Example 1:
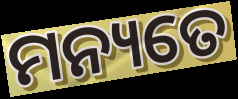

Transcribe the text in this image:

ମନ୍ୟତେ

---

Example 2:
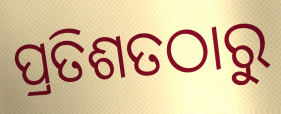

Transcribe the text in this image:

ପ୍ରତିଶତଠାରୁ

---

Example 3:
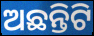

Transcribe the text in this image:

ଅଛନ୍ତିଟି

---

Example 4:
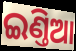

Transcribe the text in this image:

ଇଣ୍ତିଆ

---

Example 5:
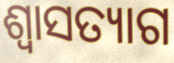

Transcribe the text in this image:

ଶ୍ବାସତ୍ୟାଗ